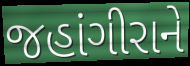
જહાંગીરાને